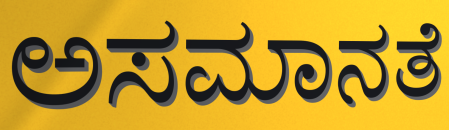
ಅಸಮಾನತೆ